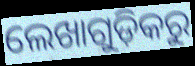
ଲେଖାଗୁଡ଼ିକରୁ